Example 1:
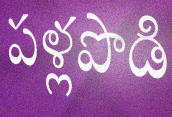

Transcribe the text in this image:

పళ్లపొడి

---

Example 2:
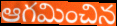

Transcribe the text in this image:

ఆగమించిన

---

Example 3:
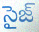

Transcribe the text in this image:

సైజ్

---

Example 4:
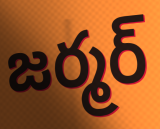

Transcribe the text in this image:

జర్మర్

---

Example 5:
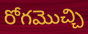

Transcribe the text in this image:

రోగమొచ్చి